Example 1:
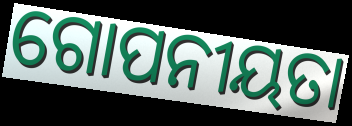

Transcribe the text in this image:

ଗୋପନୀୟତା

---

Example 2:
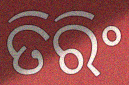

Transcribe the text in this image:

ତିରିଂ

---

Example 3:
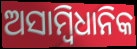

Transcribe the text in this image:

ଅସାମ୍ୱିଧାନିକ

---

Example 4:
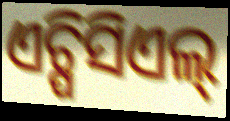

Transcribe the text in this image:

ଏଚ୍ପିସିଏଲ୍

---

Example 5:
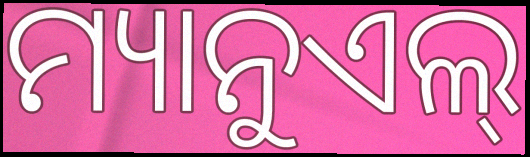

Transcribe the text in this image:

ମ୍ୟାନୁଏଲ୍